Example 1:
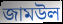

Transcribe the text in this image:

জামউল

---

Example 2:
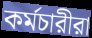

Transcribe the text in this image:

কর্মচারীরা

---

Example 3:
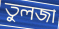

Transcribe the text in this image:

তুলজা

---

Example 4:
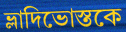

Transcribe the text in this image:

ভ্লাদিভোস্তকে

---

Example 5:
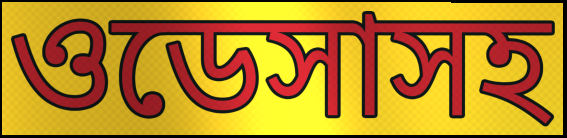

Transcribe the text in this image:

ওডেসাসহ